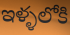
ఇళ్ళలోకి